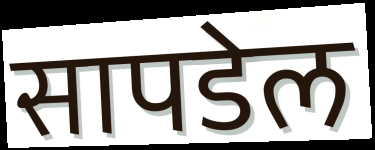
सापडेल